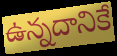
ఉన్నదానికే